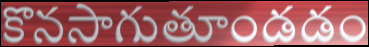
కొనసాగుతూండడం